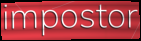
impostor